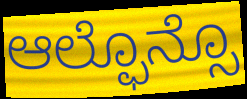
ಆಲ್ಫೊನ್ಸೊ